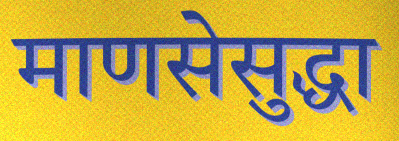
माणसेसुद्धा